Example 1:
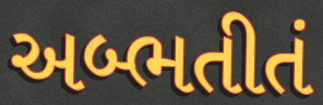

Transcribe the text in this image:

અબ્ભતીતં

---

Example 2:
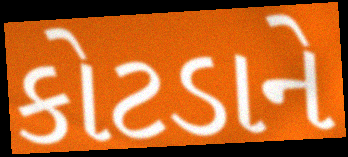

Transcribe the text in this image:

કોટડાને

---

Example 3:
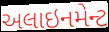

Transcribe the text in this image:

અલાઇનમેન્ટ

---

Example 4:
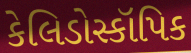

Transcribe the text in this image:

કેલિડોસ્કૉપિક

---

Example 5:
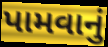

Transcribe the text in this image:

પામવાનું